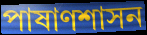
পাষাণশাসন